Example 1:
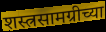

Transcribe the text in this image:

शस्त्रसामग्रीच्या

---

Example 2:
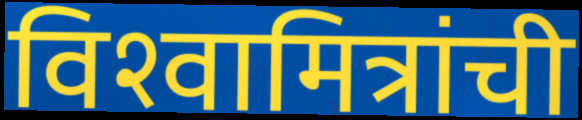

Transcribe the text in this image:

विश्वामित्रांची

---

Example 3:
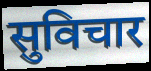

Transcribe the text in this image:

सुविचार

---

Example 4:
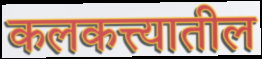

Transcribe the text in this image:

कलकत्त्यातील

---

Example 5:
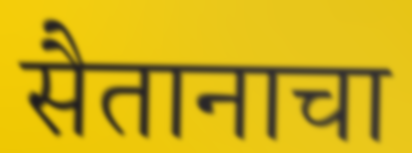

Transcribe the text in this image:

सैतानाचा